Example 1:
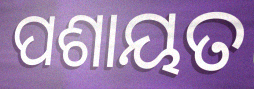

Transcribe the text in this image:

ପଶାୟତ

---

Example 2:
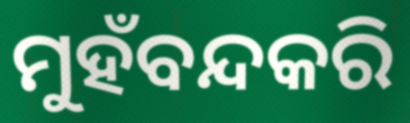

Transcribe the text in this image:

ମୁହଁବନ୍ଦକରି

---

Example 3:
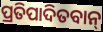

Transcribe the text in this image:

ପ୍ରତିପାଦିତବାନ୍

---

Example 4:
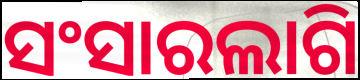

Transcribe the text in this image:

ସଂସାରଲାଗି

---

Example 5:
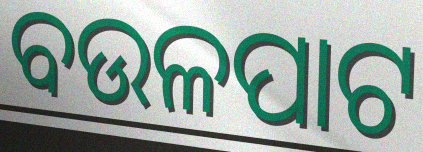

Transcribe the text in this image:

ବଉଳପାଟ